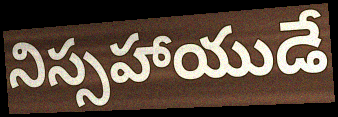
నిస్సహాయుడే